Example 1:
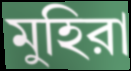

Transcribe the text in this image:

মুহিরা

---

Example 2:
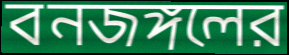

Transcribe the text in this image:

বনজঙ্গলের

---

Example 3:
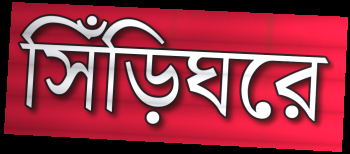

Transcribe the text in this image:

সিঁড়িঘরে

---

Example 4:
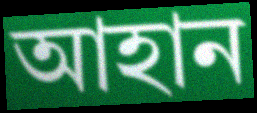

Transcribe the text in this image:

আহান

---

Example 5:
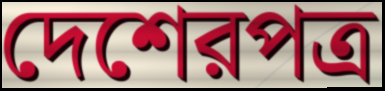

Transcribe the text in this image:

দেশেরপত্র